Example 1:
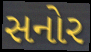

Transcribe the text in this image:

સનોર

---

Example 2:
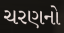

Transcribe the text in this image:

ચરણનો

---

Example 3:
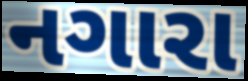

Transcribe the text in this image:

નગારા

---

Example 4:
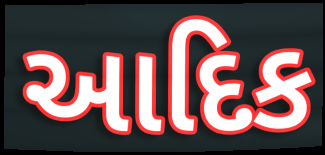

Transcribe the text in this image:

આદિક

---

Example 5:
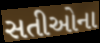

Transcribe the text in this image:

સતીઓના